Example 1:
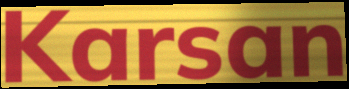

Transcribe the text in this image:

Karsan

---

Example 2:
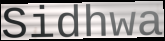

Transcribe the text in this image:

Sidhwa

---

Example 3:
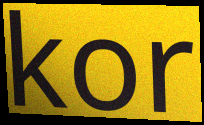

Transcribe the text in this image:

kor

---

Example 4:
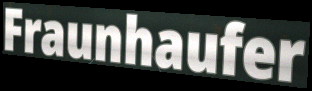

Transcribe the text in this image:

Fraunhaufer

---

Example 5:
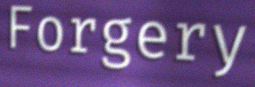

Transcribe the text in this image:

Forgery